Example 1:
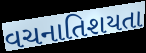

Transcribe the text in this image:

વચનાતિશયતા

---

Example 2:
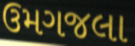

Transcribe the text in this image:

ઉમગજલા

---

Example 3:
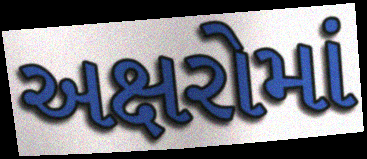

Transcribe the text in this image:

અક્ષરોમાં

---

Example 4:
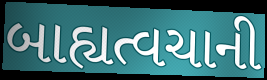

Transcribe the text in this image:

બાહ્યત્વચાની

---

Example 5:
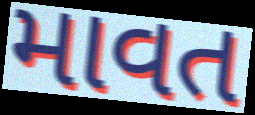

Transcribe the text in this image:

માવત